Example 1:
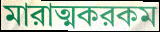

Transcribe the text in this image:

মারাত্মকরকম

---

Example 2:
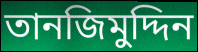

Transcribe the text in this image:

তানজিমুদ্দিন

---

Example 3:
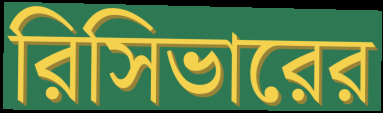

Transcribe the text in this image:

রিসিভারের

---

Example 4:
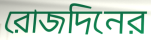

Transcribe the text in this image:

রোজদিনের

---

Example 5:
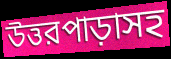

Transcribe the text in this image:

উত্তরপাড়াসহ